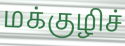
மக்குழிச்